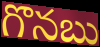
గొనబు